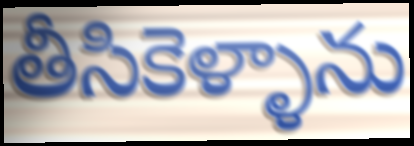
తీసికెళ్ళాను